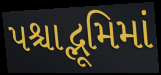
પશ્ચાદ્ભૂમિમાં